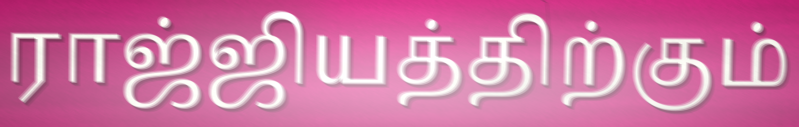
ராஜ்ஜியத்திற்கும்